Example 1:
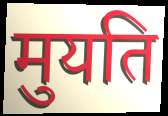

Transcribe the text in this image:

मुयति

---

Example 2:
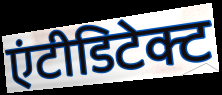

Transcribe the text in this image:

एंटीडिटेक्ट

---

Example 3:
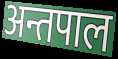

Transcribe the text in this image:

अन्तपाल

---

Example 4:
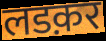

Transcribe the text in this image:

लडक़र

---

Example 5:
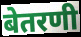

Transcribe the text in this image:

बेतरणी